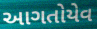
આગતોયેવ